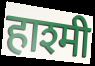
हाश्मी